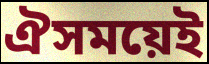
ঐসময়েই